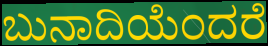
ಬುನಾದಿಯೆಂದರೆ